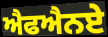
ਐਫਐਨਏ